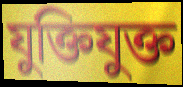
যুক্তিযুক্ত